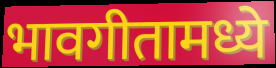
भावगीतामध्ये